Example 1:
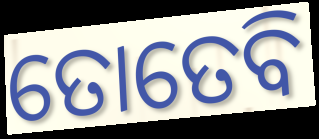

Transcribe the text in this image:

ତୋତେବି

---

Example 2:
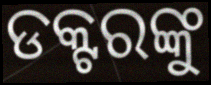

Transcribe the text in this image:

ଡକ୍ଟରଙ୍କୁ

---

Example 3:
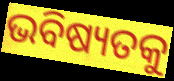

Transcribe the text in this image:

ଭବିଷ୍ୟତକୁ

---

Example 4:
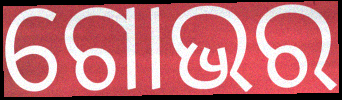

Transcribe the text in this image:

ଗୋଭର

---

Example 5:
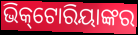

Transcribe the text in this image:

ଭିକ୍‌ଟୋରିୟାଙ୍କର